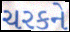
ચરકને